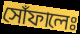
সোঁফালেঃ